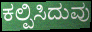
ಕಲ್ಪಿಸಿದುವು